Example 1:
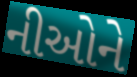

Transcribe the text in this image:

નીઓને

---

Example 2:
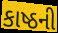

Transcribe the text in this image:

કાષ્ઠની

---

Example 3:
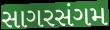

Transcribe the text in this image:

સાગરસંગમ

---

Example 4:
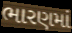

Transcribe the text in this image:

ભારણમાં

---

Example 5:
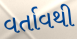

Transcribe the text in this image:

વર્તાવથી